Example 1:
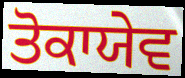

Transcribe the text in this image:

ਤੋਕਾਯੇਵ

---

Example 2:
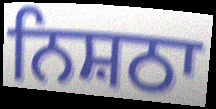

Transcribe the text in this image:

ਨਿਸ਼ਠਾ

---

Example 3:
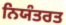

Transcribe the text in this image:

ਨਿਯੰਤਰਤ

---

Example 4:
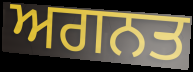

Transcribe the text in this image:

ਅਗਨਤ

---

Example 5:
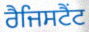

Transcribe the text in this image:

ਰੈਜਿਸਟੈਂਟ